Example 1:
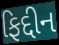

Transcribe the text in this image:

ફિદ્દીન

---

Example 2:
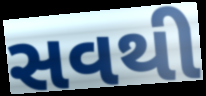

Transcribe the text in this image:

સવથી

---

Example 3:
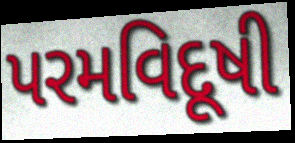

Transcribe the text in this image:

પરમવિદૂષી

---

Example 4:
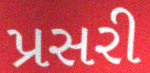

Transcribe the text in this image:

પ્રસરી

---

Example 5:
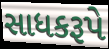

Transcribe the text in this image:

સાધકરૂપે